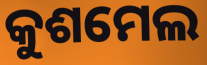
କୁଶମେଲ